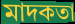
মাদকতা